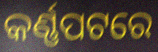
କର୍ଣ୍ଣପଟରେ